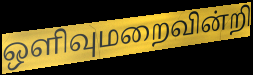
ஒளிவுமறைவின்றி